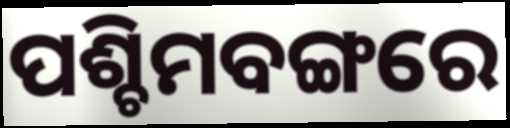
ପଶ୍ଚିମବଙ୍ଗରେ